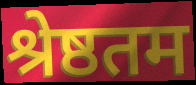
श्रेष्ठतम